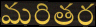
మరితర